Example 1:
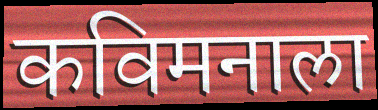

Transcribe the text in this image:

कविमनाला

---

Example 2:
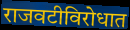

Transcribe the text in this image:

राजवटीविरोधात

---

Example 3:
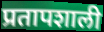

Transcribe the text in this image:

प्रतापशाली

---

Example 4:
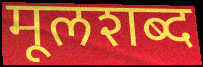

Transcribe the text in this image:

मूलशब्द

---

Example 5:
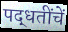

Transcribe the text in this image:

पद्धतींचें